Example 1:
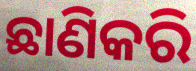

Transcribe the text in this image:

ଛାଣିକରି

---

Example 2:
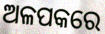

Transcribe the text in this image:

ଅଳପକରେ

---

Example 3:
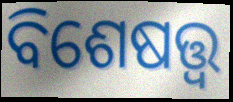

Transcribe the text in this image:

ବିଶେଷତ୍ତ୍ୱ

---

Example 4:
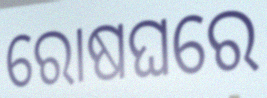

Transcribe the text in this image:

ରୋଷଘରେ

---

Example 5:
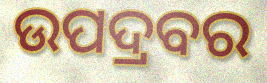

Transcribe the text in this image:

ଉପଦ୍ରବର